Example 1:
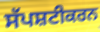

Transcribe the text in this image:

ਸੱਪਸ਼ਟੀਕਰਨ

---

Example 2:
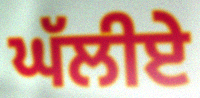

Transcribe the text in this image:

ਘੱਲੀਏ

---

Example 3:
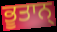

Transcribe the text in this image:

ਭੂਤਾਨ੍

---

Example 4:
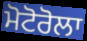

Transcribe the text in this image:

ਮੋਟੋਰੋਲਾ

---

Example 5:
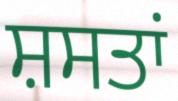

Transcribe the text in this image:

ਸ਼ਸਤਾਂ